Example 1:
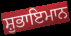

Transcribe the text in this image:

ਸ਼ੁਭਾਇਮਾਨ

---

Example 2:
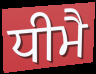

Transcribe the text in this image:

ਧੀਮੈ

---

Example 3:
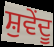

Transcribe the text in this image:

ਸ਼ੁਵੇਂਦੂ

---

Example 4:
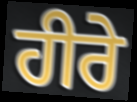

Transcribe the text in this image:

ਹੀਰੇ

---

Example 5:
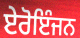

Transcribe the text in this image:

ਏਰੋਇੰਜਨ